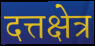
दत्तक्षेत्र